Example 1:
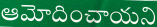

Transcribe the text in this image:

ఆమోదించాయని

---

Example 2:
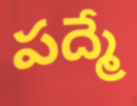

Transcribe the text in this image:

పద్మే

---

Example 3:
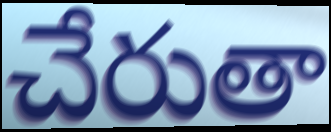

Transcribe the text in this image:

చేరుతా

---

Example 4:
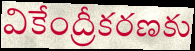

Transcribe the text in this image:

వికేంద్రీకరణకు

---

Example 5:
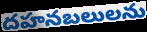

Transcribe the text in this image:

దహనబలులను